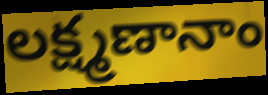
లక్ష్మణానాం